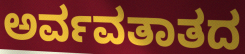
ಅರ್ವವತಾತದ